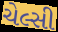
ચેલ્સી